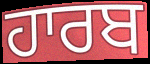
ਹਾਰਬ